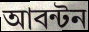
আবন্টন